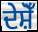
ਦੇਸ਼ੋਁ